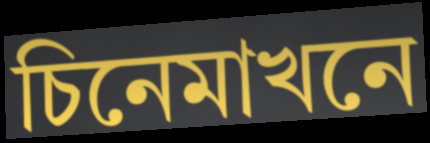
চিনেমাখনে